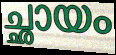
ച്ഛായം